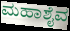
ಮಹಾಶೈವ